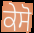
ਕੇਸੋ